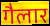
गैलार